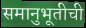
समानुभूतीची